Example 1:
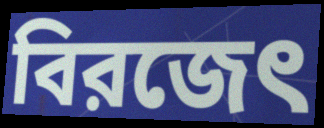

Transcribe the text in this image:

বিরজেৎ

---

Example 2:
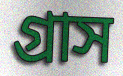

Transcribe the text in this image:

গ্রাস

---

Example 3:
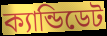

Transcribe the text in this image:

ক্যান্ডিডেট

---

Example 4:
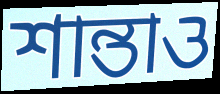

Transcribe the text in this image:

শান্তাও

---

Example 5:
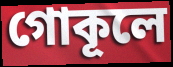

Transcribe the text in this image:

গোকূলে